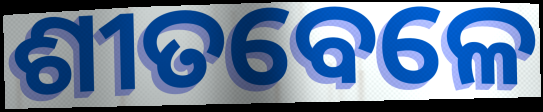
ଶୀତବେଳେ